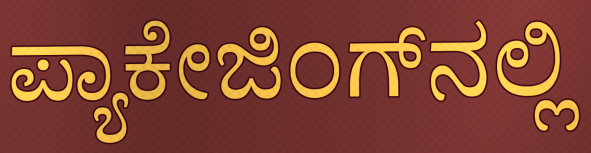
ಪ್ಯಾಕೇಜಿಂಗ್‌ನಲ್ಲಿ